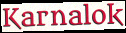
Karnalok